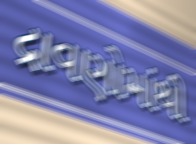
દ્રાવણોમાંથી